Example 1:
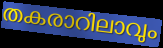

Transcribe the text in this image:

തകരാറിലാവും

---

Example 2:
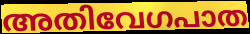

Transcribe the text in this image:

അതിവേഗപാത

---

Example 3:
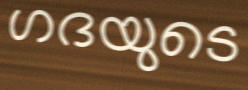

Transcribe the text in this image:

ഗദയുടെ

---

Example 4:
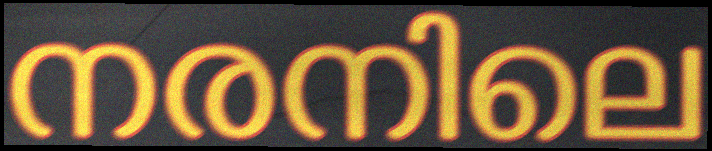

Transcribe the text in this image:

നരനിലെ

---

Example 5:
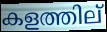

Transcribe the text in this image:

കളത്തില്